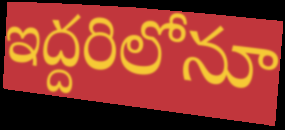
ఇద్దరిలోనూ